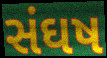
સંઘષ